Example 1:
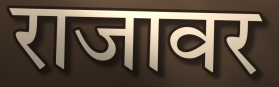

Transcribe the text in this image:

राजावर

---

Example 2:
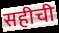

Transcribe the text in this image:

सहीची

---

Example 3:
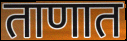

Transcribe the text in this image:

ताणात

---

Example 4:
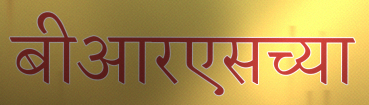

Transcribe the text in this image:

बीआरएसच्या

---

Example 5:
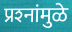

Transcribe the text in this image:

प्रश्‍नांमुळे